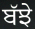
ਬੱਝੇ